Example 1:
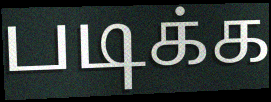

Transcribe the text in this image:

படிக்க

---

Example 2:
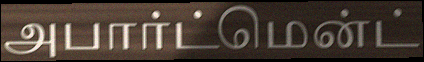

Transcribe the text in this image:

அபார்ட்மென்ட்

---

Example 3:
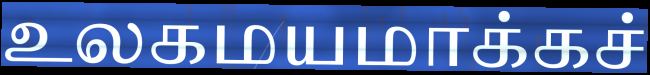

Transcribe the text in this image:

உலகமயமாக்கச்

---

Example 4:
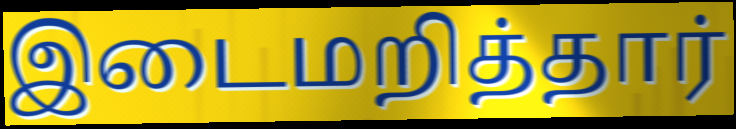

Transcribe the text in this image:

இடைமறித்தார்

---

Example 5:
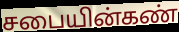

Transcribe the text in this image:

சபையின்கண்